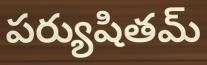
పర్యుషితమ్